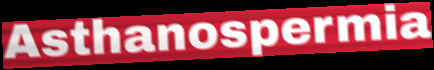
Asthanospermia